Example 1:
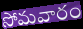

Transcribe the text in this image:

సోమవారం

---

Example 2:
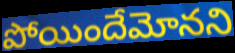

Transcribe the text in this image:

పోయిందేమోనని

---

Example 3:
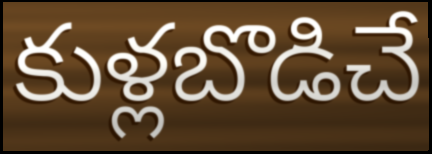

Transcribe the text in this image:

కుళ్లబొడిచే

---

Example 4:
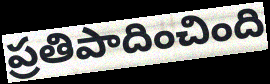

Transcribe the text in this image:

ప్రతిపాదించింది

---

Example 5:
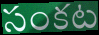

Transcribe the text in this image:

సంకట